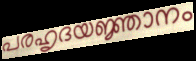
പരഹൃദയജ്ഞാനം